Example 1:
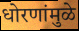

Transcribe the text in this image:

धोरणांमुळे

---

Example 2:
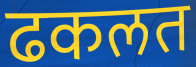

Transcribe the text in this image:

ढकलत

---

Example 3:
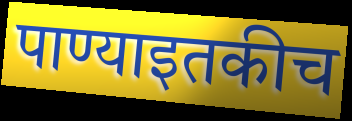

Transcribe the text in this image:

पाण्याइतकीच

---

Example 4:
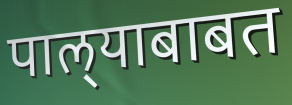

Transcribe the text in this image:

पाल्याबाबत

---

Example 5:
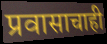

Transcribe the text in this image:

प्रवासाचाही